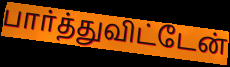
பார்த்துவிட்டேன்